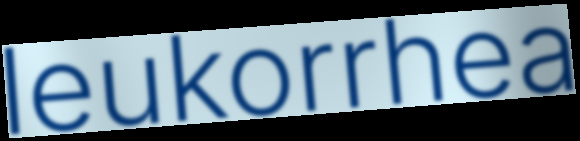
leukorrhea